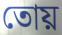
তোয়